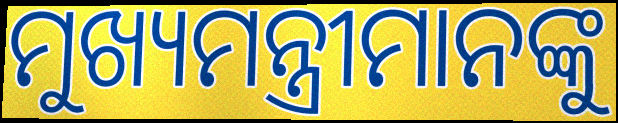
ମୁଖ୍ୟମନ୍ତ୍ରୀମାନଙ୍କୁ